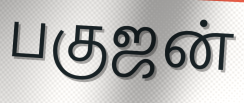
பகுஜன்